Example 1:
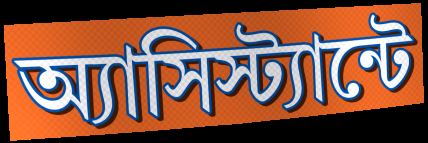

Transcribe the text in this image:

অ্যাসিস্ট্যান্টে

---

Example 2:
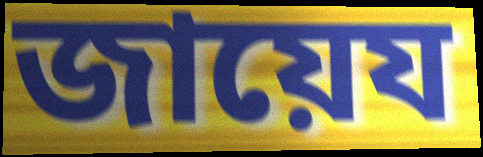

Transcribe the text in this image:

জায়েয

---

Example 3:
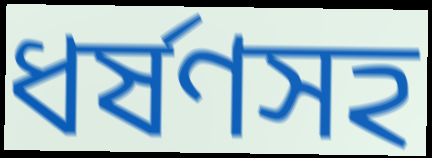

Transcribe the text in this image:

ধর্ষণসহ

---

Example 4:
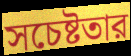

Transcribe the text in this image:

সচেষ্টতার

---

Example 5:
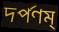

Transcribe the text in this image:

দর্পণম্